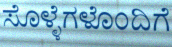
ಸೊಳ್ಳೆಗಳೊಂದಿಗೆ